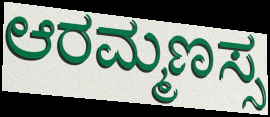
ಆರಮ್ಮಣಸ್ಸ